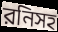
রনিসহ